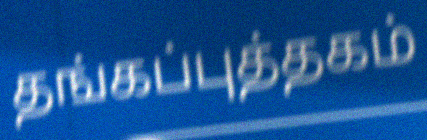
தங்கப்புத்தகம்